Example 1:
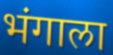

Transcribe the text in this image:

भंगाला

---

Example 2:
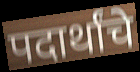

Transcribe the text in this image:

पदार्थांचे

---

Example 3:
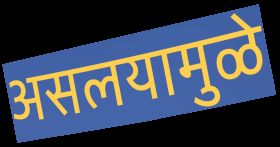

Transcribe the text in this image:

असलयामुळे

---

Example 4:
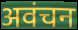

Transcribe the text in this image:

अवंचन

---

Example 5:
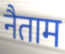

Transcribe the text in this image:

नैताम